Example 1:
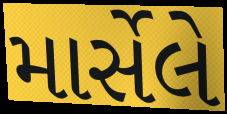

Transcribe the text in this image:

માર્સેલે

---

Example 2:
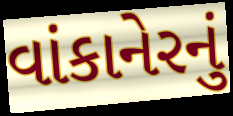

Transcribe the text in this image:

વાંકાનેરનું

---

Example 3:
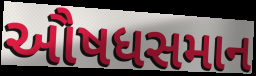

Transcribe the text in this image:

ઔષધસમાન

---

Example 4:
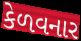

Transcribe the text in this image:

કેળવનાર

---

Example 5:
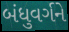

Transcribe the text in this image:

બંધુવર્ગને